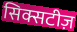
सिक्सटीज़